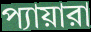
প্যায়ারা